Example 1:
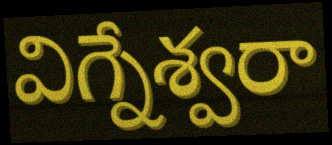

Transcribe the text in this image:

విగ్నేశ్వరా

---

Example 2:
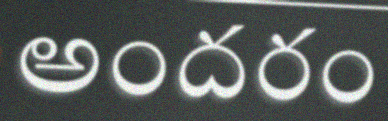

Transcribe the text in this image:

అందరం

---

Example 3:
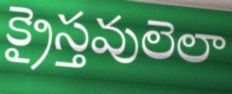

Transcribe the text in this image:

క్రైస్తవులెలా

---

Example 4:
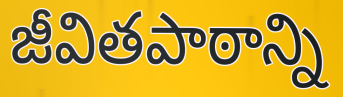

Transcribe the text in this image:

జీవితపాఠాన్ని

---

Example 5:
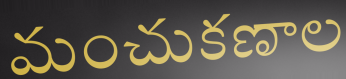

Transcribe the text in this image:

మంచుకణాల